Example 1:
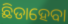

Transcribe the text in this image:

ଛିଡାହେବା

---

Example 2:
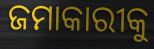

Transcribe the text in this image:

ଜମାକାରୀକୁ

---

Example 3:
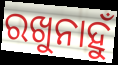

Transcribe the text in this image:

ରଖୁନାହୁଁ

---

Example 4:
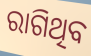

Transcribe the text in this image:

ରାଗିଥିବ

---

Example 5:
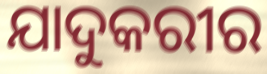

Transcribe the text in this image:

ଯାଦୁକରୀର